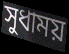
সুধাময়